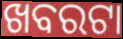
ଖବରଟା